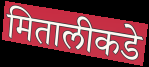
मितालीकडे